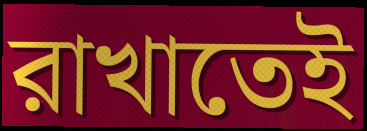
রাখাতেই